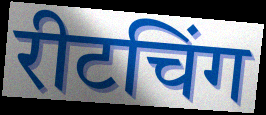
रीटचिंग